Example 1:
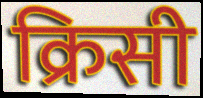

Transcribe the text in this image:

क्रिसी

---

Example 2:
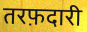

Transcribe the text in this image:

तरफ़दारी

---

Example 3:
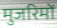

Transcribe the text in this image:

मुजरिमों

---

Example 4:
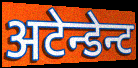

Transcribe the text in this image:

अटेन्डेन्ट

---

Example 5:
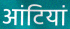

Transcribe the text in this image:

आंटियां